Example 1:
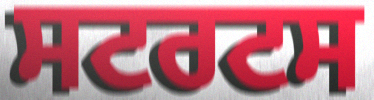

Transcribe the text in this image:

ਸਟਰਟਸ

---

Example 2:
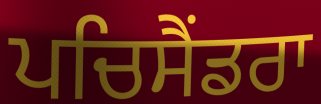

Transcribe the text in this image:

ਪਚਿਸੈਂਡਰਾ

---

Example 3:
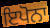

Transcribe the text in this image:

ਇਪੋਨਾ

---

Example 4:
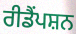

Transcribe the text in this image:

ਰੀਡੈਂਪਸ਼ਨ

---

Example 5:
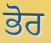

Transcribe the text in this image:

ਭੋਰ